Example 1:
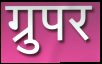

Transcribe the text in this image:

ग्रुपर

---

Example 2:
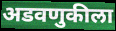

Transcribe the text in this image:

अडवणुकीला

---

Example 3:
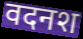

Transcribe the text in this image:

वदनश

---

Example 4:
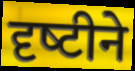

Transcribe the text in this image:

दृष्‍टीने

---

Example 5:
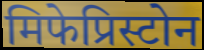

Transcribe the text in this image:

मिफेप्रिस्टोन